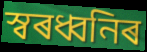
স্বৰধ্বনিৰ